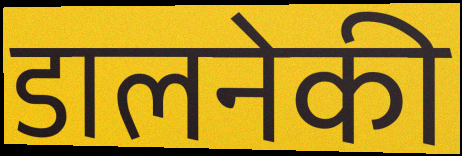
डालनेकी